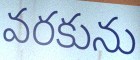
వరకును